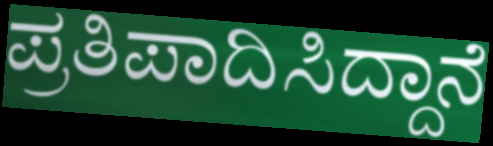
ಪ್ರತಿಪಾದಿಸಿದ್ದಾನೆ